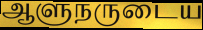
ஆளுநருடைய